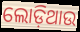
ଲୋଡ଼ିଥାଉ